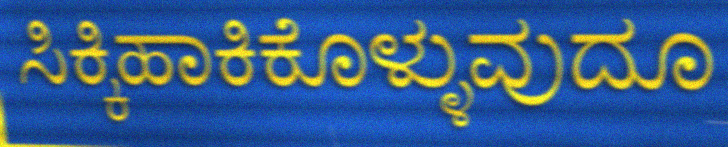
ಸಿಕ್ಕಿಹಾಕಿಕೊಳ್ಳುವುದೂ